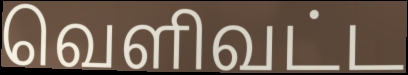
வெளிவட்ட